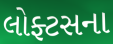
લોફ્ટસના